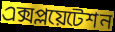
এক্সপ্লয়েটেশন